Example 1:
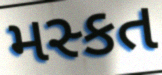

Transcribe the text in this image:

મસ્કત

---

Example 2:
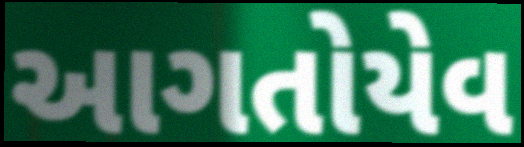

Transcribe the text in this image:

આગતોયેવ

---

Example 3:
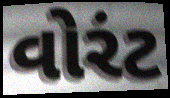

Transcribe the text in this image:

વોરંટ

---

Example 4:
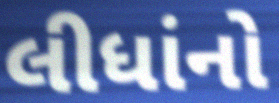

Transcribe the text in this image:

લીધાંનો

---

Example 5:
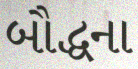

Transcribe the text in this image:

બૌદ્ધના